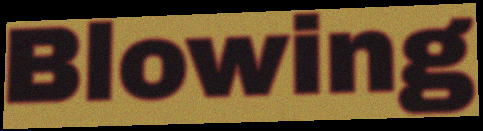
Blowing